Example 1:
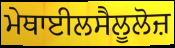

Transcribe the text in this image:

ਮੇਥਾਈਲਸੈਲੂਲੋਜ਼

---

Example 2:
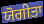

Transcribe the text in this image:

ਯੋਗੀਤਾ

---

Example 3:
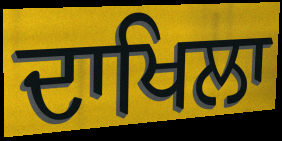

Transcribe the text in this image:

ਦਾਖਿਲਾ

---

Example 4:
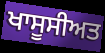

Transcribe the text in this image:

ਖਾਸੂਸੀਅਤ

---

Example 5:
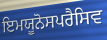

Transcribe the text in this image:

ਇਮਯੂਨੋਸਪਰੈਸਿਵ